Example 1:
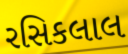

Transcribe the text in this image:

રસિકલાલ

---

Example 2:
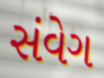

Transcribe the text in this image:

સંવેગ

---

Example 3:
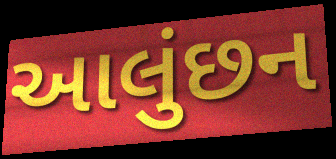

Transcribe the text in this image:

આલુંછન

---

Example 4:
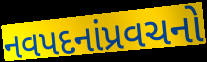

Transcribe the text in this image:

નવપદનાંપ્રવચનો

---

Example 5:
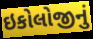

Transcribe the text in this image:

ઇકોલોજીનું